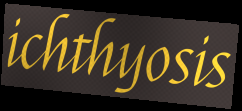
ichthyosis